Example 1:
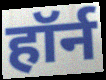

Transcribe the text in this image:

हॉर्न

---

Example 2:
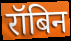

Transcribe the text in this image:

रॉबिन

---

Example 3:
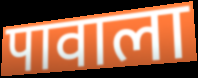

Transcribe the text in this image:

पावाला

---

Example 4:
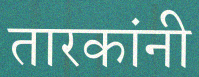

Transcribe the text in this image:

तारकांनी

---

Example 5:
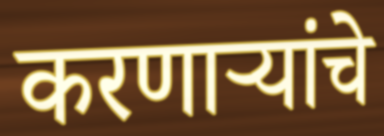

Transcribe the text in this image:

करणाऱ्यांचे